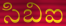
సిబిఐ